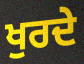
ਖੁਰਦੇ